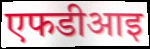
एफडीआइ